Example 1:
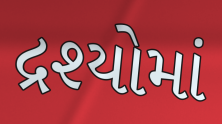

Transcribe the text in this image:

દ્રશ્યોમાં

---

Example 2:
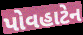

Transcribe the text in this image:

પોવહાટેન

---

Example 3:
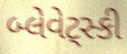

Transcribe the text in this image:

બ્લેવેટ્સ્કી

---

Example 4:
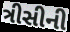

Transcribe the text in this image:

ત્રીસીની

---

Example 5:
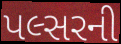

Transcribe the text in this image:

પલ્સરની